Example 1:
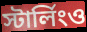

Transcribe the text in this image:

স্টার্লিংও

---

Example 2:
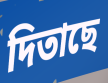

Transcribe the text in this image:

দিতাছে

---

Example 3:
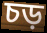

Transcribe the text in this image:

চড়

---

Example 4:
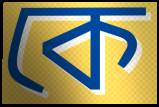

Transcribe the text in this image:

কে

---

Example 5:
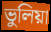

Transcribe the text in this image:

ভুলিয়া